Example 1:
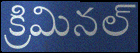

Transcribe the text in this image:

క్రిమినల్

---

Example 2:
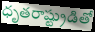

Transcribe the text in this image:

ధృతరాష్ట్రుడితో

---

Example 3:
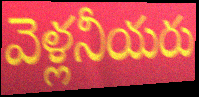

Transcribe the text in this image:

వెళ్లనీయరు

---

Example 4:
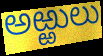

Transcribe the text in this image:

అఱ్ఱులు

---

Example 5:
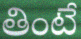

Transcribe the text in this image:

తింటే